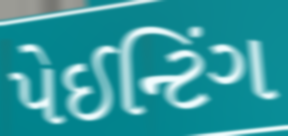
પેઈન્ટિંગ